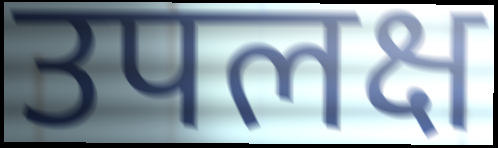
उपलक्ष